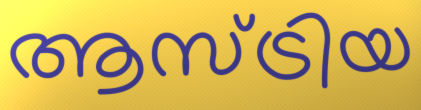
ആസ്ട്രിയ